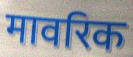
मावरिक